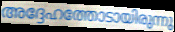
അദ്ദേഹത്തോടായിരുന്നു